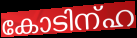
കോടിന്ഹ